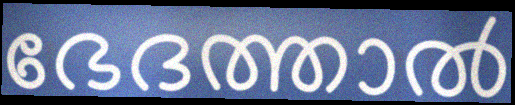
ഭേദത്താൽ